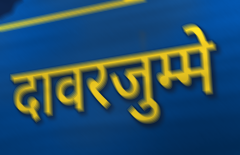
दावरजुम्मे